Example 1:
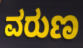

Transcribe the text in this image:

ವರುಣ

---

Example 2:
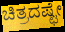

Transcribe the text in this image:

ಚಿತ್ರದಷ್ಟೇ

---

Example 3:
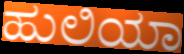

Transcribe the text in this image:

ಹುಲಿಯಾ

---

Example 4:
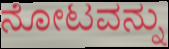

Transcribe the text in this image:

ನೋಟವನ್ನು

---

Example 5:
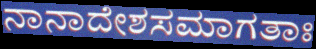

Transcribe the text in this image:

ನಾನಾದೇಶಸಮಾಗತಾಃ